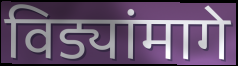
विड्यांमागे